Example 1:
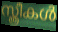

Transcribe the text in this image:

സ്ത്രീകൾ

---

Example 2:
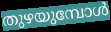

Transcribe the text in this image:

തുഴയുമ്പോൾ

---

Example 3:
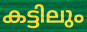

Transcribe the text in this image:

കട്ടിലും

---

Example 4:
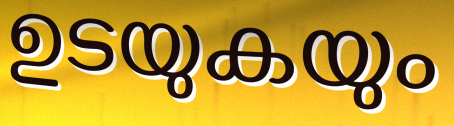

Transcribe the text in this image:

ഉടയുകയും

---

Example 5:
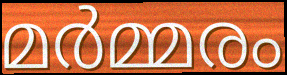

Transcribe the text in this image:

മർമ്മരം